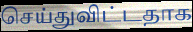
செய்துவிட்டதாக